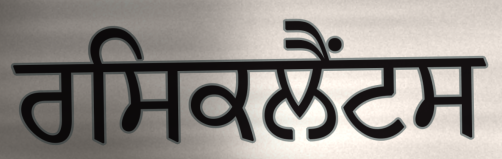
ਰਸਿਕਲੈਂਟਸ